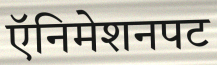
ऍनिमेशनपट